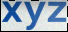
xyz